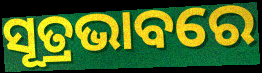
ସୂତ୍ରଭାବରେ